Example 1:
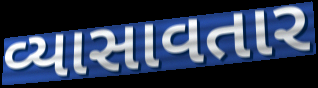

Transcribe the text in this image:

વ્યાસાવતાર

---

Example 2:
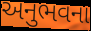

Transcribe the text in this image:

અનુભવના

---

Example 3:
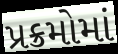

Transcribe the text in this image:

પ્રક્રમોમાં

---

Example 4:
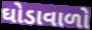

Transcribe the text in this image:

ઘોડાવાળો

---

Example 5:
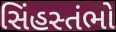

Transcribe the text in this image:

સિંહસ્તંભો